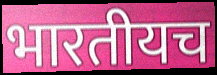
भारतीयच